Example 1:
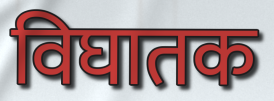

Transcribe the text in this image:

विघातक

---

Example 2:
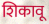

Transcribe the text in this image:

शिकावू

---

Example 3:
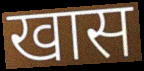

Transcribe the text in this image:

खास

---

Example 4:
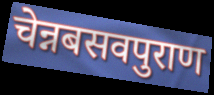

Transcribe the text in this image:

चेन्नबसवपुराण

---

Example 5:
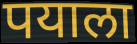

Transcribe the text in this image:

पयाला